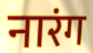
नारंग